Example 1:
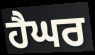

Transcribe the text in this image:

ਹੈਘਰ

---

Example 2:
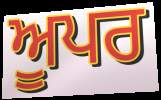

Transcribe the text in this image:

ਅੂਪਰ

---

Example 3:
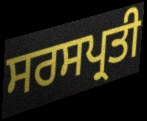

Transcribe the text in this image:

ਸਰਸਪ੍ਰਤੀ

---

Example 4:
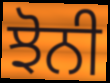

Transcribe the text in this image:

ਝੋਨੀ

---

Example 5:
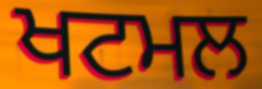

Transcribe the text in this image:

ਖਟਮਲ